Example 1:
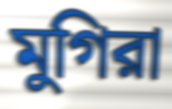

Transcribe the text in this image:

মুগিরা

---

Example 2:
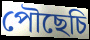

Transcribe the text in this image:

পৌছেচি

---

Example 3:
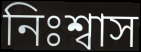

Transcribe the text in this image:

নিঃশ্বাস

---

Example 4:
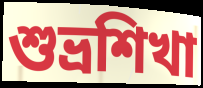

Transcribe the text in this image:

শুভ্রশিখা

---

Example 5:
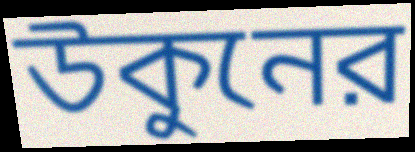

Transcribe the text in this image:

উকুনের